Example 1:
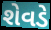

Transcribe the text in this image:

શેવડે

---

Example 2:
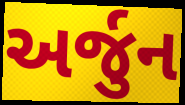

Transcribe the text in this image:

અર્જુન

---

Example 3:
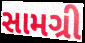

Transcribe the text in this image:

સામગ્રી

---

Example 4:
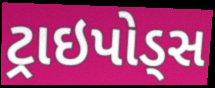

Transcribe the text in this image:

ટ્રાઇપોડ્સ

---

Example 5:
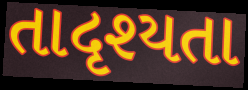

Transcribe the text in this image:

તાદૃશ્યતા